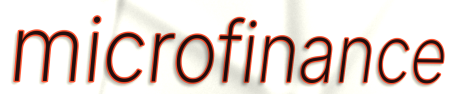
microfinance